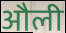
औली